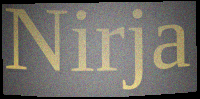
Nirja